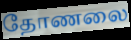
தோணலை